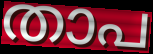
താപ